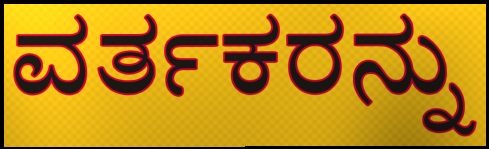
ವರ್ತಕರನ್ನು